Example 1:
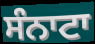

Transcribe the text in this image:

ਸੰਨਾਟਾ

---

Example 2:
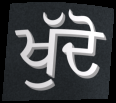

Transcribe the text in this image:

ਖੁੱਦੋ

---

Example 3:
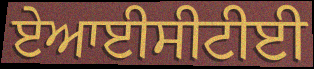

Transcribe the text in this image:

ਏਆਈਸੀਟੀਈ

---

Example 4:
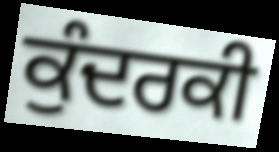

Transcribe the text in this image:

ਕੁੰਦਰਕੀ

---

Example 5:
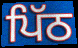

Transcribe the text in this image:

ਪਿੱਠ